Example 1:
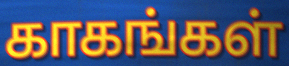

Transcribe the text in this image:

காகங்கள்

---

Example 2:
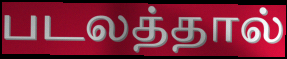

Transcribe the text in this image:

படலத்தால்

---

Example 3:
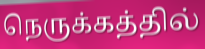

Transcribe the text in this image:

நெருக்கத்தில்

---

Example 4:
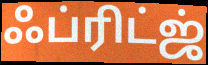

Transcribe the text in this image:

ஃப்ரிட்ஜ்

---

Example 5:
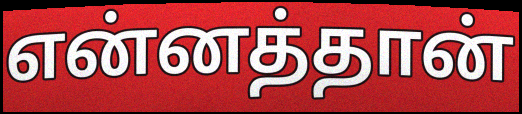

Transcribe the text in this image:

என்னத்தான்